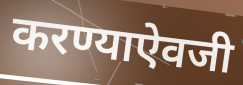
करण्याऐवजी